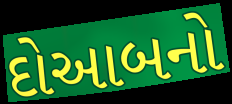
દોઆબનો